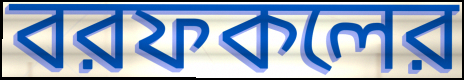
বরফকলের